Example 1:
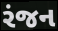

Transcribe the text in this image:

રંજન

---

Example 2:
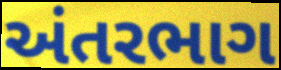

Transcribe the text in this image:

અંતરભાગ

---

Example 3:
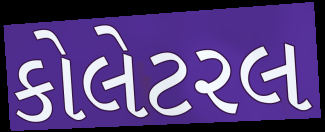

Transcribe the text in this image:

કોલેટરલ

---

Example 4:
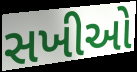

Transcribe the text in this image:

સખીઓ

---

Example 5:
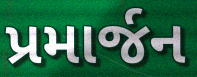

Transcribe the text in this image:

પ્રમાર્જન